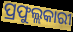
ପ୍ରଫୁଲ୍ଲକାରୀ